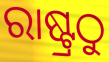
ରାଷ୍ଟ୍ରଠୁ